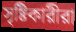
সৃষ্টিকারীরা